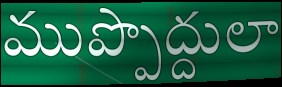
ముప్పొద్దులా